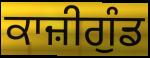
ਕਾਜ਼ੀਗੁੰਡ